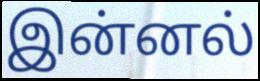
இன்னல்